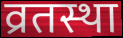
व्रतस्था